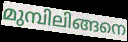
മുമ്പിലിങ്ങനെ